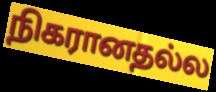
நிகரானதல்ல